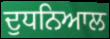
ਦੁਧਨਿਆਲ